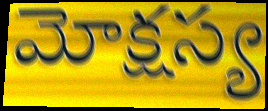
మోక్షస్య